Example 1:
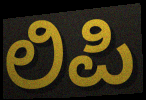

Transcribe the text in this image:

ಲಿಪಿ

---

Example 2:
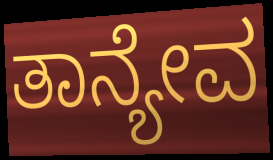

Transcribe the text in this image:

ತಾನ್ಯೇವ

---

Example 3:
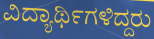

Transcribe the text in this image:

ವಿದ್ಯಾರ್ಥಿಗಳಿದ್ದರು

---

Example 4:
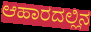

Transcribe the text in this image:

ಆಹಾರದಲ್ಲಿನ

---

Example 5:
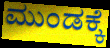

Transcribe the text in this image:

ಮುಂಡಕ್ಕೆ